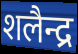
शलैन्द्र